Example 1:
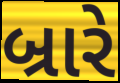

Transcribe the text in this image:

બ્રારે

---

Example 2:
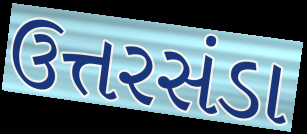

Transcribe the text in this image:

ઉત્તરસંડા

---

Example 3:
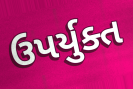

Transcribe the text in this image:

ઉપર્યુક્ત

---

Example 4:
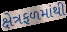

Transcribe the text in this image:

ક્ષેત્રફળમાંથી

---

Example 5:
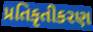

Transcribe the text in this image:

પ્રતિકૃતીકરણ